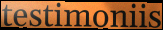
testimoniis